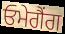
ਓਮੇਗੈਂਗ